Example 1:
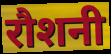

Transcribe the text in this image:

रौशनी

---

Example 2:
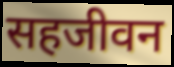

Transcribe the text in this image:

सहजीवन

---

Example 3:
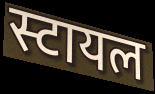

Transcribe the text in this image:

स्टायल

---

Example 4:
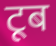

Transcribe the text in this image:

टूब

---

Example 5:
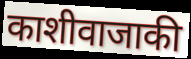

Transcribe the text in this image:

काशीवाजाकी